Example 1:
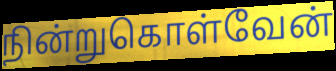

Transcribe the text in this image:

நின்றுகொள்வேன்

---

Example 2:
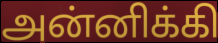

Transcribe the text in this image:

அன்னிக்கி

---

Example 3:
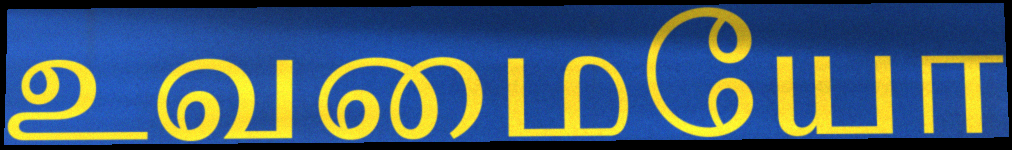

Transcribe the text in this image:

உவமையோ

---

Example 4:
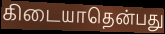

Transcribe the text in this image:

கிடையாதென்பது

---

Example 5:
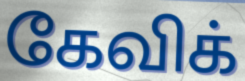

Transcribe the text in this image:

கேவிக்